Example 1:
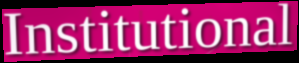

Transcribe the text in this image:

Institutional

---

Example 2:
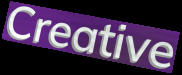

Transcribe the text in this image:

Creative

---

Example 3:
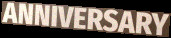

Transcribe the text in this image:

ANNIVERSARY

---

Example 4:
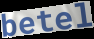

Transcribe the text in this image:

betel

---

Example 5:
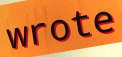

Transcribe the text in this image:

wrote